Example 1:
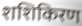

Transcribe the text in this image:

शशिकिरण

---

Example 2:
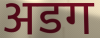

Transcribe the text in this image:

अडग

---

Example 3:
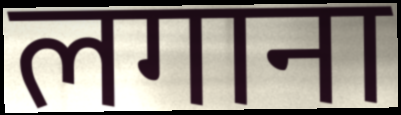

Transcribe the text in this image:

लगाना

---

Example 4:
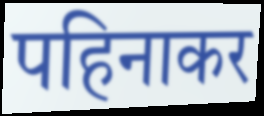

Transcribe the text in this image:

पहिनाकर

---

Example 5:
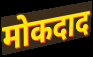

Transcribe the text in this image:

मोकदाद